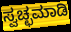
ಸ್ವಚ್ಛಮಾಡಿ